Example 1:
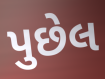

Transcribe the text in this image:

પુછેલ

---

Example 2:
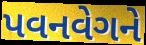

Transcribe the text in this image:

પવનવેગને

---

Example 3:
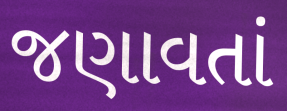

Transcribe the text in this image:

જણાવતાં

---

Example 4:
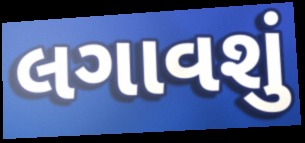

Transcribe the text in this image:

લગાવશું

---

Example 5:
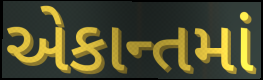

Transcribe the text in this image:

એકાન્તમાં